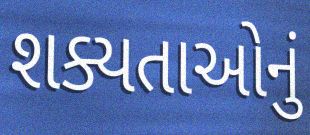
શક્યતાઓનું